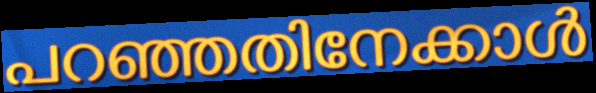
പറഞ്ഞതിനേക്കാൾ